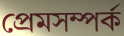
প্রেমসম্পর্ক